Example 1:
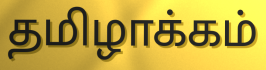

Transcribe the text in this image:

தமிழாக்கம்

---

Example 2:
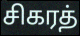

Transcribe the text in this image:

சிகரத்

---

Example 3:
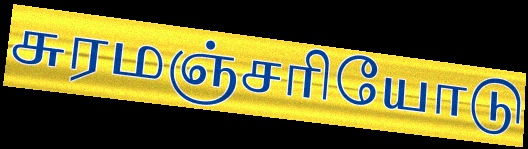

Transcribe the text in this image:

சுரமஞ்சரியோடு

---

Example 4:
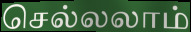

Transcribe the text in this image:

செல்லலாம்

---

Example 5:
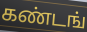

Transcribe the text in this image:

கண்டங்